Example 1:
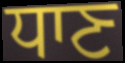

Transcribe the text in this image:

ਧਾਣ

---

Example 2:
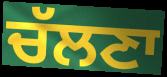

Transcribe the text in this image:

ਚੱਲਣਾ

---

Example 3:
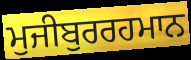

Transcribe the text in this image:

ਮੁਜੀਬੁਰਰਹਮਾਨ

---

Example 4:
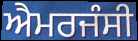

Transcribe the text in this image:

ਐਮਰਜੰਸੀ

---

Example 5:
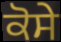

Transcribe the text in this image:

ਕੋਸੇ